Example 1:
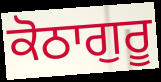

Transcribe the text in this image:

ਕੋਠਾਗੁਰੂ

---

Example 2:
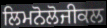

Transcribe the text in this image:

ਲਿਮਨੋਲੋਜੀਕਲ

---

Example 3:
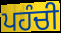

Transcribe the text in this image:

ਪਹੰਚੀ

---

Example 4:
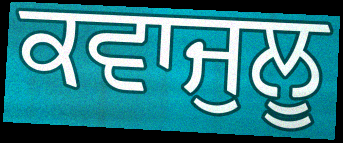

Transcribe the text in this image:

ਕਵਾਜੁਲੂ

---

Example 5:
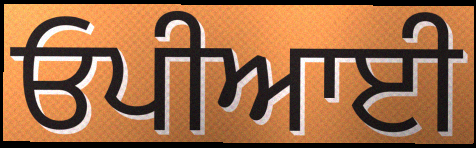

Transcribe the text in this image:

ਓਪੀਆਈ